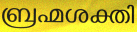
ബ്രഹ്മശക്തി